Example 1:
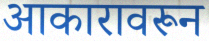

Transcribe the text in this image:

आकारावरून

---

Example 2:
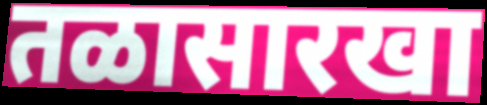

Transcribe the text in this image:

तळासारखा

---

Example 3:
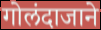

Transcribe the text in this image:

गोलंदाजाने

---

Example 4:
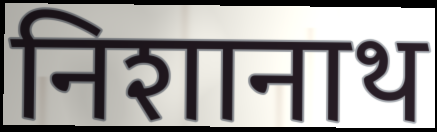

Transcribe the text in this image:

निशानाथ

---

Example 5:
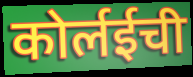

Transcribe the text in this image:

कोर्लईची